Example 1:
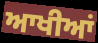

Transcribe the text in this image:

ਆਖੀਆਂ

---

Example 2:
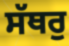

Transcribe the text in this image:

ਸੱਥਰੁ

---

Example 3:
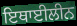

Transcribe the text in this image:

ਇਥਾਈਲੀਨ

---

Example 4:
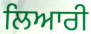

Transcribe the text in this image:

ਲਿਆਰੀ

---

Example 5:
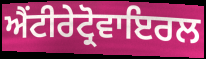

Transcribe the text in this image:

ਐਂਟੀਰੇਟ੍ਰੋਵਾਇਰਲ